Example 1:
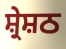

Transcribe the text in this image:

ਸ਼੍ਰੇਸ਼ਠ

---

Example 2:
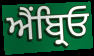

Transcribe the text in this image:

ਐਂਬ੍ਰਿਓ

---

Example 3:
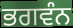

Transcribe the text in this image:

ਭਗਵੰਨ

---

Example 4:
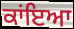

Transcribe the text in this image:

ਕਾਂਇਆ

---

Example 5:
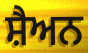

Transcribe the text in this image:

ਸ਼ੈਅਨ